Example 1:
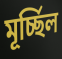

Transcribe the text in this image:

মূর্চ্ছিল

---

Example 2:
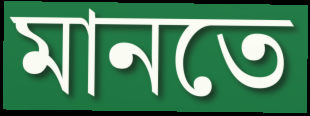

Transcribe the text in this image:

মানতে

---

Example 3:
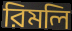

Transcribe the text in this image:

রিমলি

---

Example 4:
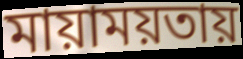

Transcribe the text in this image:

মায়াময়তায়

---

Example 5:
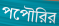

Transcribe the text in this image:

পপৌরির